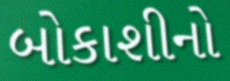
બોકાશીનો